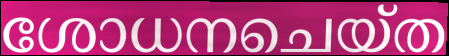
ശോധനചെയ്ത